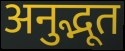
अनुद्भूत